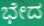
ಭೇದ